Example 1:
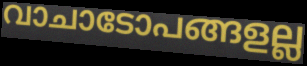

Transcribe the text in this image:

വാചാടോപങ്ങളല്ല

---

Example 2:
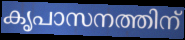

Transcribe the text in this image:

കൃപാസനത്തിന്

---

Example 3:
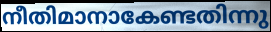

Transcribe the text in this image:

നീതിമാനാകേണ്ടതിന്നു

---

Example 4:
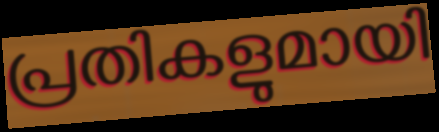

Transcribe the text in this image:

പ്രതികളുമായി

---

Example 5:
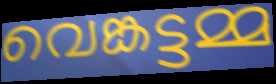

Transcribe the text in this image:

വെങ്കട്ടമ്മ